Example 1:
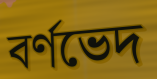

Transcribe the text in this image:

বর্ণভেদ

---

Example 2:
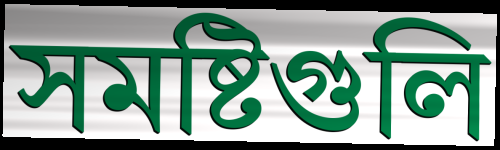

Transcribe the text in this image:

সমষ্টিগুলি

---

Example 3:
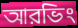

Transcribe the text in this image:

আরভিং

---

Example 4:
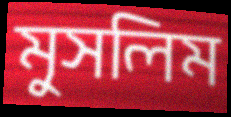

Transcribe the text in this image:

মুসলিম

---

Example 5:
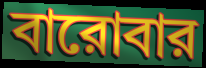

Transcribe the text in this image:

বারোবার